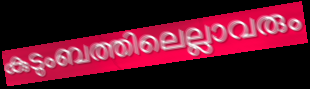
കുടുംബത്തിലെല്ലാവരും